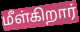
மீள்கிறார்